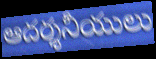
ఆదర్శనీయులు